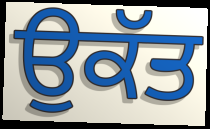
ਉਕੱਤ